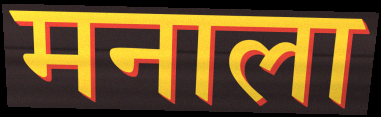
मनाला